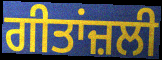
ਗੀਤਾਂਜ਼ਲੀ